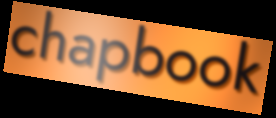
chapbook